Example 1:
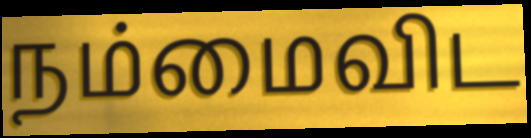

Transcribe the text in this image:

நம்மைவிட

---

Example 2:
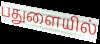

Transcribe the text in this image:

பதுளையில்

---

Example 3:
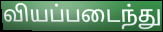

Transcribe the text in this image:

வியப்படைந்து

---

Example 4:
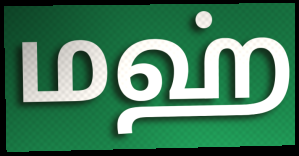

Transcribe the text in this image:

மஹ்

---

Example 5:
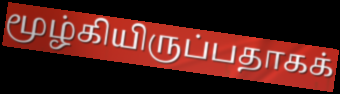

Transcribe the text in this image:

மூழ்கியிருப்பதாகக்